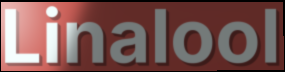
Linalool